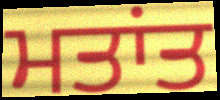
ਮਤਾਂਤ